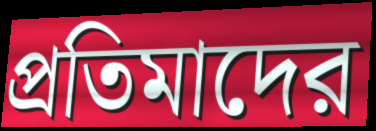
প্রতিমাদের